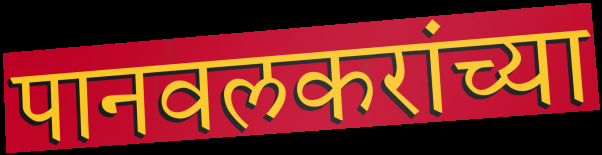
पानवलकरांच्या